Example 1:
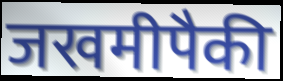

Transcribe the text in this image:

जखमीपैकी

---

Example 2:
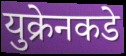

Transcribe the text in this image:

युक्रेनकडे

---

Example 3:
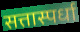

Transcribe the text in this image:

सत्तास्पर्धा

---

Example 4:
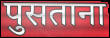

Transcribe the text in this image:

पुसताना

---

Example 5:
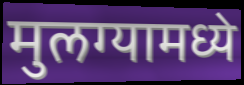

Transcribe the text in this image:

मुलग्यामध्ये